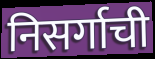
निसर्गाची